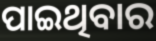
ପାଇଥିବାର